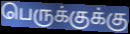
பெருக்குக்கு